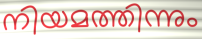
നിയമത്തിന്നും